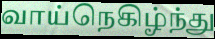
வாய்நெகிழ்ந்து